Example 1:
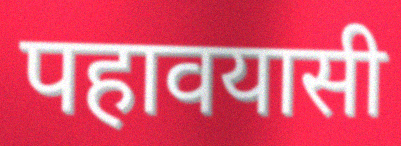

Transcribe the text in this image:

पहावयासी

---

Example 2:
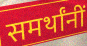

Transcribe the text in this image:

समर्थांनीं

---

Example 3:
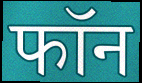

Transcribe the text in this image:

फॉन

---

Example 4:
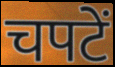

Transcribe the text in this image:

चपटें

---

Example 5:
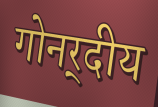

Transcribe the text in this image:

गोनर्दीय